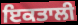
ਇਕਤਾਲੀ